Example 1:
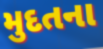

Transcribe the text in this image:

મુદતના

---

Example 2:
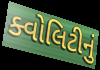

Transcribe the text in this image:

ક્વોલિટીનું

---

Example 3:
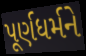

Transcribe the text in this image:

પૂર્ણધર્મને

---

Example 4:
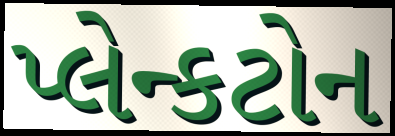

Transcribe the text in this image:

પ્લેન્કટોન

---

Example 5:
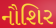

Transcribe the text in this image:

નૌશિર